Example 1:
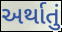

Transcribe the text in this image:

અર્થાતું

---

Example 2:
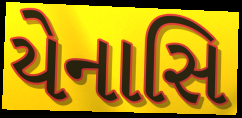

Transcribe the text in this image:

યેનાસિ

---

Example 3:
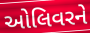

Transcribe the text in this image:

ઓલિવરને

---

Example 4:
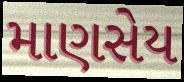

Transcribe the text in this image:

માણસેય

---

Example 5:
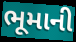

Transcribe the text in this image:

ભૂમાની